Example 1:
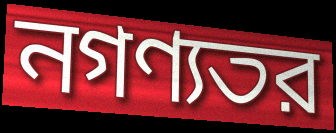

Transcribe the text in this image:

নগণ্যতর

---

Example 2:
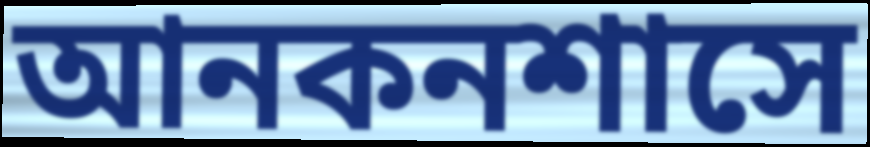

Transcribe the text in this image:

আনকনশাসে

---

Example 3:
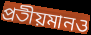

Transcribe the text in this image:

প্রতীয়মানও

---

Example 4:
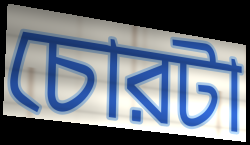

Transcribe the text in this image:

চোরটা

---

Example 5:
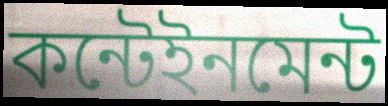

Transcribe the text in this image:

কন্টেইনমেন্ট